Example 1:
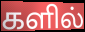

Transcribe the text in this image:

களில்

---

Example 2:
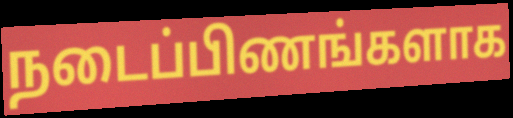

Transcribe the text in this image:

நடைப்பிணங்களாக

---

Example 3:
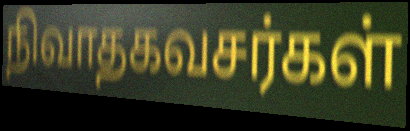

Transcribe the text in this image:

நிவாதகவசர்கள்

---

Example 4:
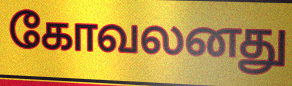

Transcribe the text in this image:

கோவலனது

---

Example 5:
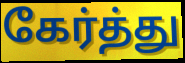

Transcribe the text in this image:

கேர்த்து